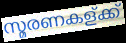
സ്മരണകള്ക്ക്